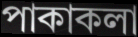
পাকাকলা